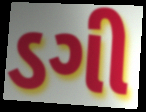
ડગી